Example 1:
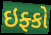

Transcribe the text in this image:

ઇફ્કો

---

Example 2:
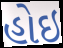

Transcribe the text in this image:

હોઇ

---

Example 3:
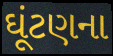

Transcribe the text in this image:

ઘૂંટણના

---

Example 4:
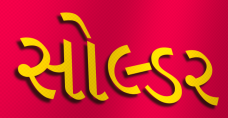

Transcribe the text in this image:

સોલ્ડર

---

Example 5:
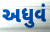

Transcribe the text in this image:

અધુવં